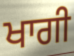
ਖਾਗੀ